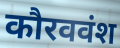
कौरववंश